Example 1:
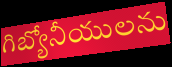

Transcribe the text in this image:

గిబ్యోనీయులను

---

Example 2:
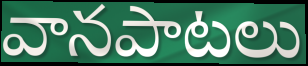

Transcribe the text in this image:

వానపాటలు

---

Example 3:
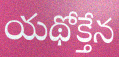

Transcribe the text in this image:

యథోక్తేన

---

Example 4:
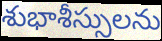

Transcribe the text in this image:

శుభాశీస్సులను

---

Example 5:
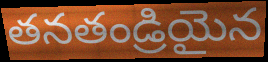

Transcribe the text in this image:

తనతండ్రియైన